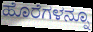
ಹೊರೆಗಳನ್ನೂ